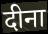
दीना